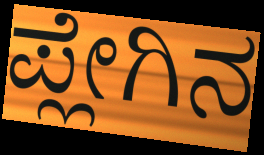
ಪ್ಲೇಗಿನ